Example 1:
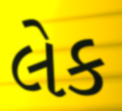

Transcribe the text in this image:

લેક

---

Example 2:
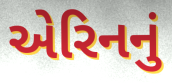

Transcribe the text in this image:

એરિનનું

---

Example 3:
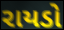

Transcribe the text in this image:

રાયડો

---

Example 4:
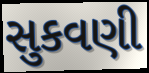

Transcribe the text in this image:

સુકવણી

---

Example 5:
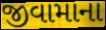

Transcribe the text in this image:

જીવામાના